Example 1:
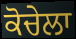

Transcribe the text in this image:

ਕੋਚੇਲਾ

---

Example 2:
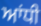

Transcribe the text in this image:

ਆਂਧੀ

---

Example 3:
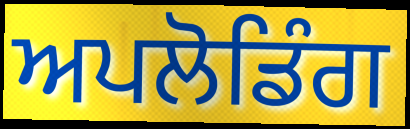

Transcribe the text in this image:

ਅਪਲੋਡਿੰਗ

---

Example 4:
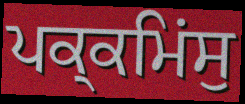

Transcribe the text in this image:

ਪਕ੍ਕਮਿਂਸੁ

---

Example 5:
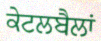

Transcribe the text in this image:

ਕੇਟਲਬੈਲਾਂ